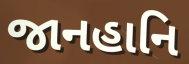
જાનહાનિ